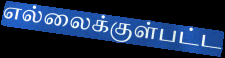
எல்லைக்குள்பட்ட